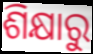
ଶିକ୍ଷାରୁ